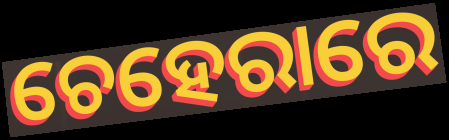
ଚେହେରାରେ